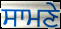
ਸਾਮਣੇ